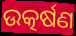
ଉତ୍କର୍ଷଣ